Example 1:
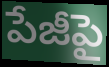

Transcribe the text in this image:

పేజీపై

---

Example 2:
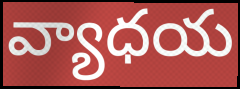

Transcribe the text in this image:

వ్యాధయ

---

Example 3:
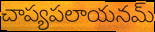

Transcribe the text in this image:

చాప్యపలాయనమ్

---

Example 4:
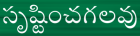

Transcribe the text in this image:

సృష్టించగలవు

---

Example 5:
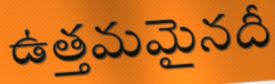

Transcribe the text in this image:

ఉత్తమమైనదీ